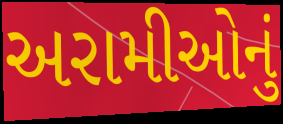
અરામીઓનું